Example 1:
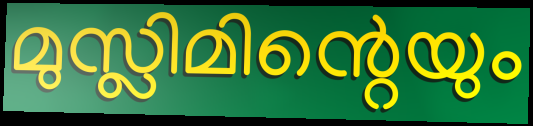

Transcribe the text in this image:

മുസ്ലിമിന്റെയും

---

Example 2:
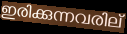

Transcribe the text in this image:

ഇരിക്കുന്നവരില്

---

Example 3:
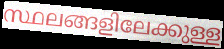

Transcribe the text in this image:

സ്ഥലങ്ങളിലേക്കുള്ള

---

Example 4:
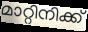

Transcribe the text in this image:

മാറ്റിനിക്ക്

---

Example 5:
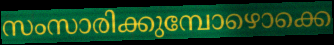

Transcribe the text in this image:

സംസാരിക്കുമ്പോഴൊക്കെ